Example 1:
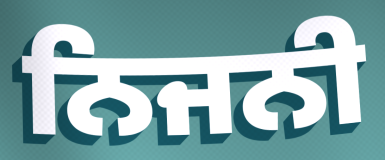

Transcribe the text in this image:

ਨਿਜਨੀ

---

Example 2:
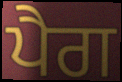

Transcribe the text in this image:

ਪੈਗ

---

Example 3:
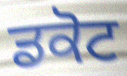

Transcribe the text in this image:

ਡਕੋਟ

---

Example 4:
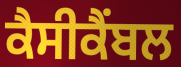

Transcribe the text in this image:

ਕੈਸੀਕੈਂਬਲ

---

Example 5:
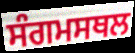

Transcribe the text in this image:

ਸੰਗਮਸਥਲ